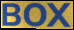
BOX